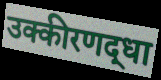
उक्कीरणद्धा